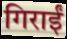
गिराईं